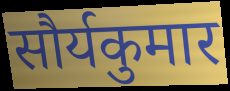
सौर्यकुमार